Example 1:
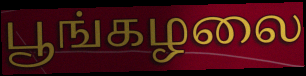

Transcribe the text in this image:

பூங்கழலை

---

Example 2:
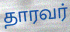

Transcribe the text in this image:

தாரவர்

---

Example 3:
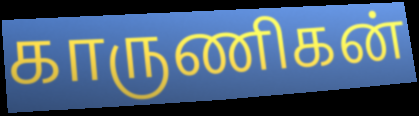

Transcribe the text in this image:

காருணிகன்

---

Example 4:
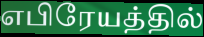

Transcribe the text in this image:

எபிரேயத்தில்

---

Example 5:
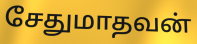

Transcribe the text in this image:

சேதுமாதவன்